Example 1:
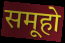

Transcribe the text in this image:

समूहो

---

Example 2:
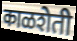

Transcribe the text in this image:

काळशेती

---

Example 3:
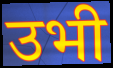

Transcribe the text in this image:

उभी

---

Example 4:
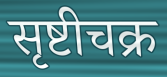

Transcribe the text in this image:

सृष्टीचक्र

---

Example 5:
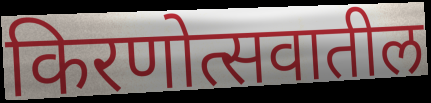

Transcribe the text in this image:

किरणोत्सवातील